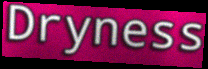
Dryness